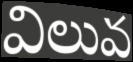
విలువ